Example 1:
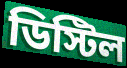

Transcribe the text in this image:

ডিস্টিল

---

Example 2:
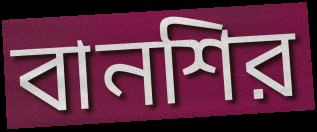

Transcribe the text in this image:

বানশির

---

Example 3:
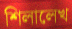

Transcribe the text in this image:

শিলালেখ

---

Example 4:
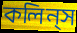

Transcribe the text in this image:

কলিন্‌স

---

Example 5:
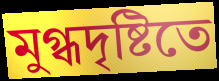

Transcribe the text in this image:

মুগ্ধদৃষ্টিতে